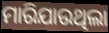
ମାରିଯାଉଥିଲା